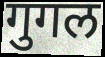
गुगल